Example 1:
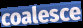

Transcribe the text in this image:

coalesce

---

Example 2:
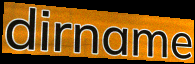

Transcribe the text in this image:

dirname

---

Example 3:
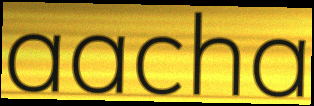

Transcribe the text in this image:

aacha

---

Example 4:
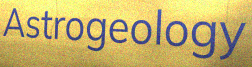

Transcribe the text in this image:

Astrogeology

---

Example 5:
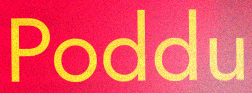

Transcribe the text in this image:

Poddu